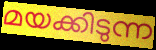
മയക്കിടുന്ന